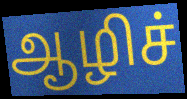
ஆழிச்